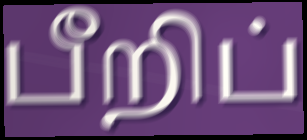
பீறிப்